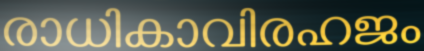
രാധികാവിരഹജം